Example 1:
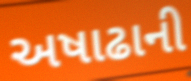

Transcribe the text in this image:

અષાઢાની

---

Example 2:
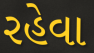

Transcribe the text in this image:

રહેવા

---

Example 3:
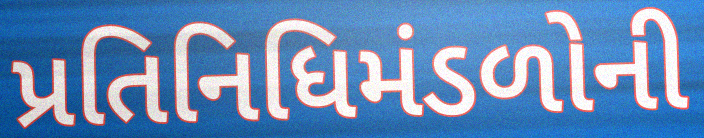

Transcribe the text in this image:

પ્રતિનિધિમંડળોની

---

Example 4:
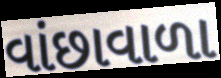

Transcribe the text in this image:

વાંછાવાળા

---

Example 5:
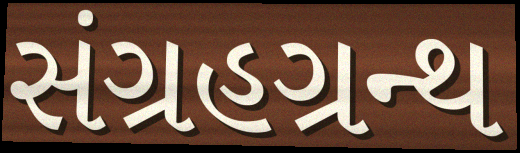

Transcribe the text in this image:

સંગ્રહગ્રન્થ